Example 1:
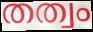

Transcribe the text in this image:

തത്വം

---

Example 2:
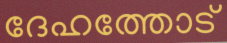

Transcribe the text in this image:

ദേഹത്തോട്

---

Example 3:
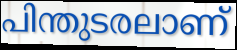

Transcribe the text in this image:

പിന്തുടരലാണ്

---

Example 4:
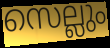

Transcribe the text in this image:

സെല്ലും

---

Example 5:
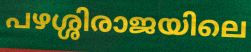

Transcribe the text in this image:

പഴശ്ശിരാജയിലെ